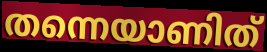
തന്നെയാണിത്